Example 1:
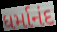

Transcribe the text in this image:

ધર્માનંદ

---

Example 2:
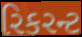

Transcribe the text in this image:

રિકરન્ટ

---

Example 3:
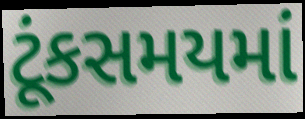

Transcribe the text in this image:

ટૂંકસમયમાં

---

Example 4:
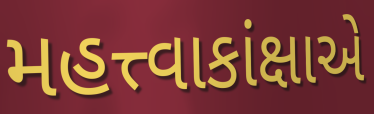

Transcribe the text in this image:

મહત્ત્વાકાંક્ષાએ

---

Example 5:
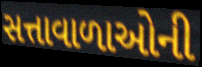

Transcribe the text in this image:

સત્તાવાળાઓની